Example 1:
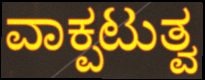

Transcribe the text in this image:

ವಾಕ್ಪಟುತ್ವ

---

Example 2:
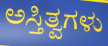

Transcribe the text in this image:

ಅಸ್ತಿತ್ವಗಳು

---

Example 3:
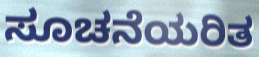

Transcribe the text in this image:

ಸೂಚನೆಯರಿತ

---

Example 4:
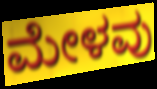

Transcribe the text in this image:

ಮೇಳವು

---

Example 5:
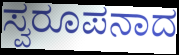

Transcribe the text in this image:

ಸ್ವರೂಪನಾದ